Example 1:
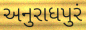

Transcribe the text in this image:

અનુરાધપુરં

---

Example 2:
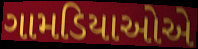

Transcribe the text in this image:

ગામડિયાઓએ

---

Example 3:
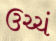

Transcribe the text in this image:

ઉચ્ચં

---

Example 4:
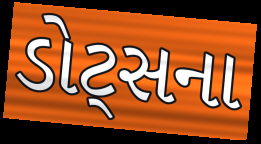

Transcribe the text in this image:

ડોટ્સના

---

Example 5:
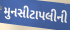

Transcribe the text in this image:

મુનસીટાપલીની